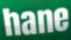
hane